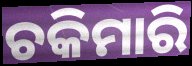
ଚକିମାରି